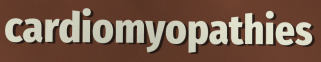
cardiomyopathies